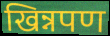
खिन्नपण